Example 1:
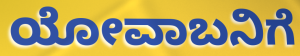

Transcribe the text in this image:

ಯೋವಾಬನಿಗೆ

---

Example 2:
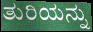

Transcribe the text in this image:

ತುರಿಯನ್ನು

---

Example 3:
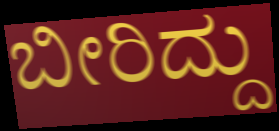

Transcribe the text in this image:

ಬೀರಿದ್ದು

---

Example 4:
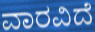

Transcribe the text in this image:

ವಾರವಿದೆ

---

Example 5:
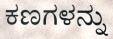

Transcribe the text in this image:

ಕಣಗಳನ್ನು